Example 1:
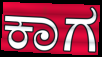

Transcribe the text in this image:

ಕಾಗ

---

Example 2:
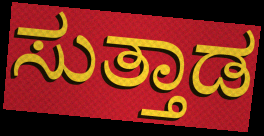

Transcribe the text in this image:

ಸುತ್ತಾಡ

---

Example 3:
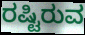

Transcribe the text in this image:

ರಷ್ಟಿರುವ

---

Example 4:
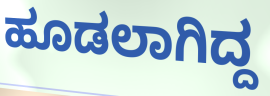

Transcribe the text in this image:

ಹೂಡಲಾಗಿದ್ದ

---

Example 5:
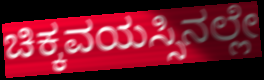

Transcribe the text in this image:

ಚಿಕ್ಕವಯಸ್ಸಿನಲ್ಲೇ